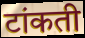
टांकती